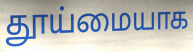
தூய்மையாக